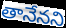
తానేనని